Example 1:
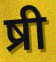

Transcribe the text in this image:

ष्री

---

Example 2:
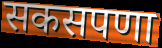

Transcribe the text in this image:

सकसपणा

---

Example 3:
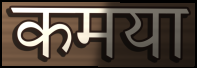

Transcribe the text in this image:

कमया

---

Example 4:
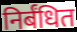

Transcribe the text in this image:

निर्बंधित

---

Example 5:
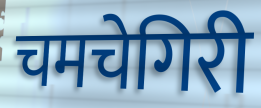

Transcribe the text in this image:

चमचेगिरी